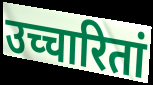
उच्चारितां